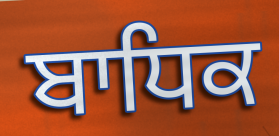
ਬਾਧਿਕ